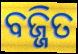
ବଜ୍ଜିତ